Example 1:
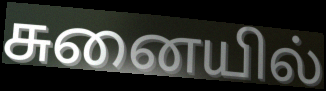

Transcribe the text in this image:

சுனையில்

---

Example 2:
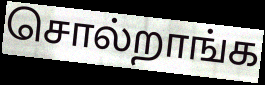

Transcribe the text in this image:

சொல்றாங்க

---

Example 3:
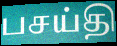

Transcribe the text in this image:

பசய்தி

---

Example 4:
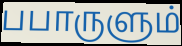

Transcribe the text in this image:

பபாருளும்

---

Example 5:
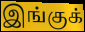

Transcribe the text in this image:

இங்குக்